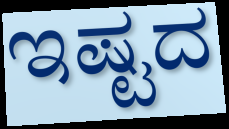
ಇಷ್ಟದ